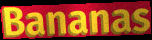
Bananas